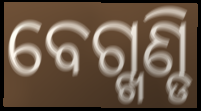
ବେଗ୍ଖଣ୍ଡି